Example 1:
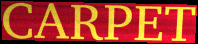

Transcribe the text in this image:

CARPET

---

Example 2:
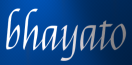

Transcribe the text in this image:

bhayato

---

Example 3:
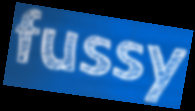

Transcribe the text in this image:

fussy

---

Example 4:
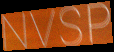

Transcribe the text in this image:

NVSP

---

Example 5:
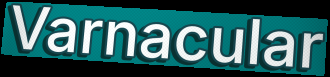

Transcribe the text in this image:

Varnacular